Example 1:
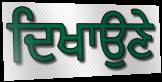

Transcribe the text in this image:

ਦਿਖਾਉਣੇ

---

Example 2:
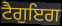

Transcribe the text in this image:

ਟੈਗੁਇਗ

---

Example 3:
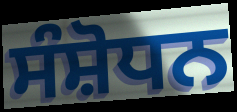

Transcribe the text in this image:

ਸੰਸ਼ੋਧਨ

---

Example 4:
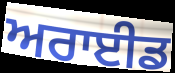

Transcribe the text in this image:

ਅਰਾਈਡ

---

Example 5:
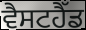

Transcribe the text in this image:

ਵੈਸਟਹੈੱਡ